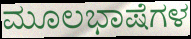
ಮೂಲಭಾಷೆಗಳ